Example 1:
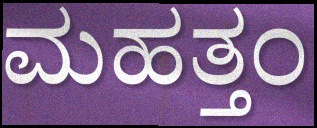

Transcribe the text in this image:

ಮಹತ್ತಂ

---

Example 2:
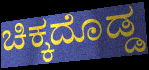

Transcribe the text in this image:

ಚಿಕ್ಕದೊಡ್ಡ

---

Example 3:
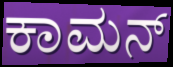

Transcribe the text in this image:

ಕಾಮನ್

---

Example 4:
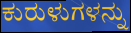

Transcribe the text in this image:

ಕುರುಳುಗಳನ್ನು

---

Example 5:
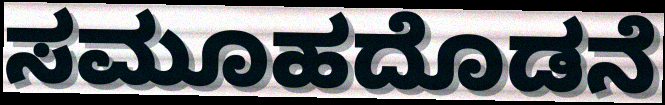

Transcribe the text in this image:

ಸಮೂಹದೊಡನೆ